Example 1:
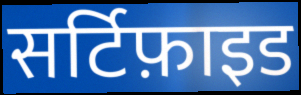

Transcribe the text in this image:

सर्टिफ़ाइड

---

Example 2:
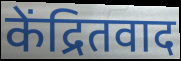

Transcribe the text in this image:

केंद्रितवाद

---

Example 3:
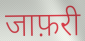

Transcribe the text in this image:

जाफ़री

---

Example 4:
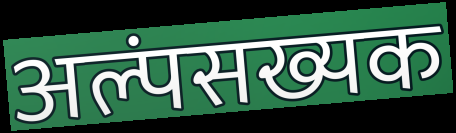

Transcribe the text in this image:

अल्पंसख्यक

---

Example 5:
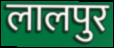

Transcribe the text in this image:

लालपुर